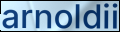
arnoldii